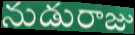
నుడురాజు